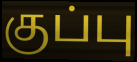
குப்பு